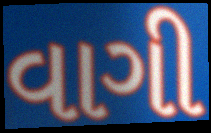
વાગી